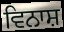
ਵਿਨਾਸ਼